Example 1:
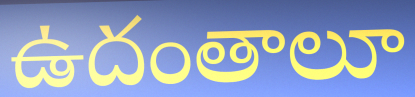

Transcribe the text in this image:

ఉదంతాలూ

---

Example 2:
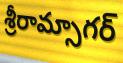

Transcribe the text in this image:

శ్రీరామ్సాగర్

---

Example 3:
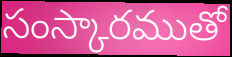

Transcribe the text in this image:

సంస్కారముతో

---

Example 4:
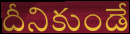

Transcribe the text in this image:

దీనికుండే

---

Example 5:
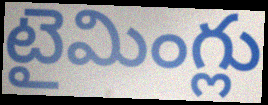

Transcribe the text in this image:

టైమింగ్లు